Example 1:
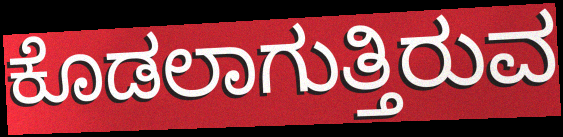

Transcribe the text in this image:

ಕೊಡಲಾಗುತ್ತಿರುವ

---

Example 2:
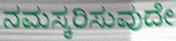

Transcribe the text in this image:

ನಮಸ್ಕರಿಸುವುದೇ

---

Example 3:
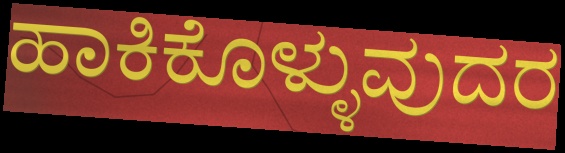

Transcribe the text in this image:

ಹಾಕಿಕೊಳ್ಳುವುದರ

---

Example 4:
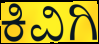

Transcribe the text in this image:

ಕಿವಿಗಿ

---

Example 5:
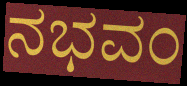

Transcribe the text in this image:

ನಭವಂ